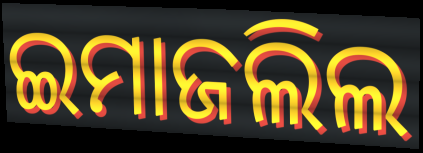
ଇମାଜଲିଲ